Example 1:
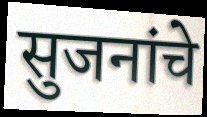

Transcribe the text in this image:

सुजनांचे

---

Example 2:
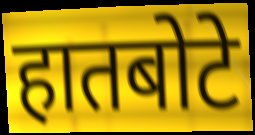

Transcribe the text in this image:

हातबोटे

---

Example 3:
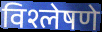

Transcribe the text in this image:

विश्लेषणे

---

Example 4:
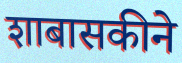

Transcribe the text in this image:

शाबासकीने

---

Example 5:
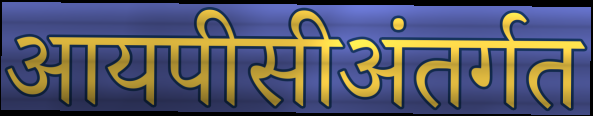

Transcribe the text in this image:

आयपीसीअंतर्गत